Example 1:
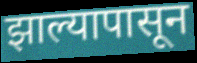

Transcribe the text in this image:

झाल्यापासून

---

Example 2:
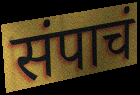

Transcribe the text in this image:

संपाचं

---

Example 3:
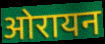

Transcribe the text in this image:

ओरायन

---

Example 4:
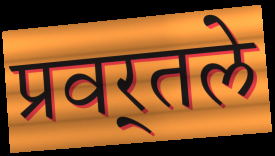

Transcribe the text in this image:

प्रवर्तले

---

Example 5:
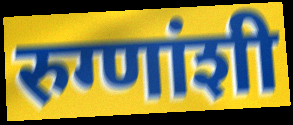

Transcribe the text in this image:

रुग्णांशी